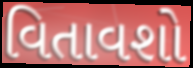
વિતાવશો